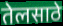
तेलसाठे